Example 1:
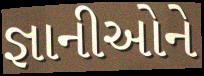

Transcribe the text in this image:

જ્ઞાનીઓને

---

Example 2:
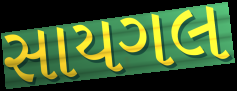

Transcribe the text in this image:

સાયગલ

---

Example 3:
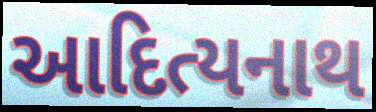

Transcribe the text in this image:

આદિત્યનાથ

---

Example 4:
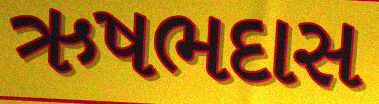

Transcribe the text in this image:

ઋષભદાસ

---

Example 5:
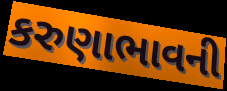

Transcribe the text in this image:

કરુણાભાવની